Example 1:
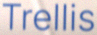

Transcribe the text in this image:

Trellis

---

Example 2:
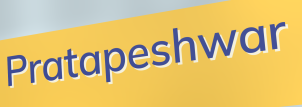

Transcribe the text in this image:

Pratapeshwar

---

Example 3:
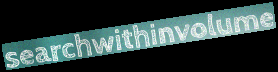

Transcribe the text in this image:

searchwithinvolume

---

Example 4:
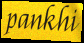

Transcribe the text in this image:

pankhi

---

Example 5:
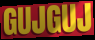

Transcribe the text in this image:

GUJGUJ